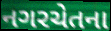
નગરચેતના